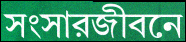
সংসারজীবনে